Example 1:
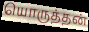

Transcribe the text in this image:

யொருத்தன்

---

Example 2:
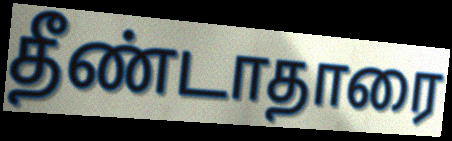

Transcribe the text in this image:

தீண்டாதாரை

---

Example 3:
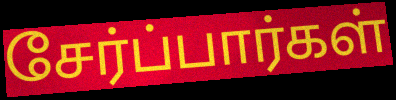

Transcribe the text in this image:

சேர்ப்பார்கள்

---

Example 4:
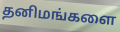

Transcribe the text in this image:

தனிமங்களை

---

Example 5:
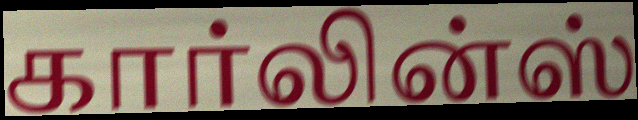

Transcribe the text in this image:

கார்லின்ஸ்